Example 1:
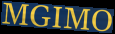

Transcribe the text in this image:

MGIMO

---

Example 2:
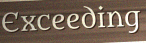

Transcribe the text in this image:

Exceeding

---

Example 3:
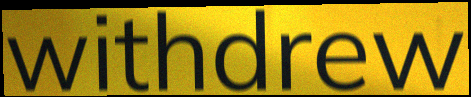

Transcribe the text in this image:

withdrew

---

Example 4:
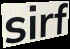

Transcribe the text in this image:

sirf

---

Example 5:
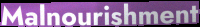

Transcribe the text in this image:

Malnourishment